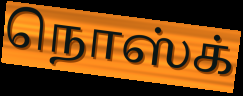
நொஸ்க்